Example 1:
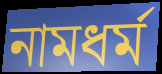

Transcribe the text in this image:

নামধৰ্ম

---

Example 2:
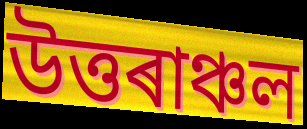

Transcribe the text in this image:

উত্তৰাঞ্চল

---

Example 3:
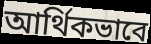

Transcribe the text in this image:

আৰ্থিকভাবে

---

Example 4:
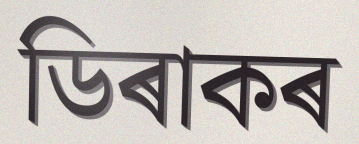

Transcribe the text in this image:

ডিৰাকৰ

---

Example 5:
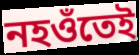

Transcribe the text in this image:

নহওঁতেই